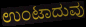
ಉಂಟಾದುವು